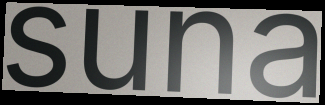
suna